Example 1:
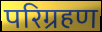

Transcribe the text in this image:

परिग्रहण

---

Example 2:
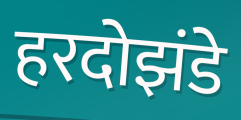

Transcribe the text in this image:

हरदोझंडे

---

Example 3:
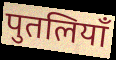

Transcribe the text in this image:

पुतलियाँ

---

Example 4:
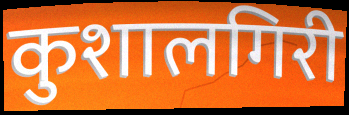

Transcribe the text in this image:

कुशालगिरी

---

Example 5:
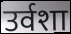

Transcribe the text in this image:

उर्वशा